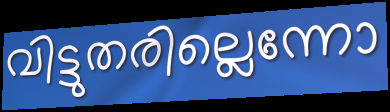
വിട്ടുതരില്ലെന്നോ